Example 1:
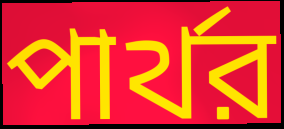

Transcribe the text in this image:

পার্থর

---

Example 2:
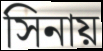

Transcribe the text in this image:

সিনায়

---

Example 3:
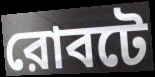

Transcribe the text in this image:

রোবটে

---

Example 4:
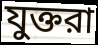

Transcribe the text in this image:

যুক্তরা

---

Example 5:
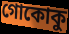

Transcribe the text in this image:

গোকোকু